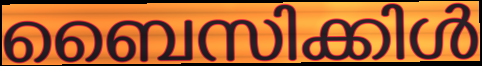
ബൈസിക്കിൾ